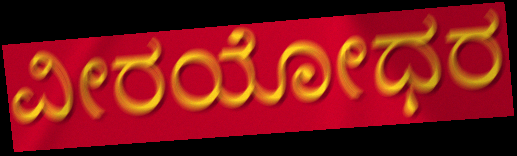
ವೀರಯೋಧರ